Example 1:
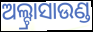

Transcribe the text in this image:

ଅଲ୍ଟ୍ରାସାଉଣ୍ଡ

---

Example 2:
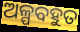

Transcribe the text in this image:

ଅଳ୍ପବହୁତ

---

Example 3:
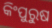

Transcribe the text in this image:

କିଂପୁରୁଷ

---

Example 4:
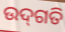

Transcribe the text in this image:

ଉଦ୍‌ଗତି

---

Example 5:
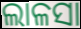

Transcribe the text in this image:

ଲାଳସା